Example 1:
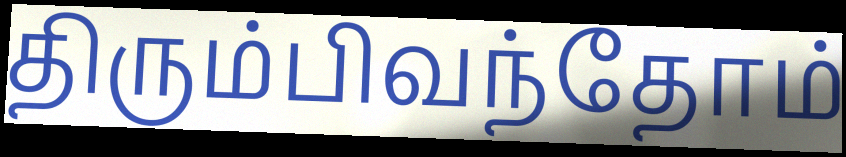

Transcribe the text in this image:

திரும்பிவந்தோம்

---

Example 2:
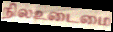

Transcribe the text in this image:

நிலஉடைமை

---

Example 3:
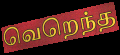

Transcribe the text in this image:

வெறெந்த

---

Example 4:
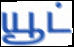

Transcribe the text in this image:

யூட்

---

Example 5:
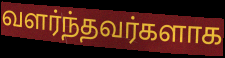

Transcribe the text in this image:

வளர்ந்தவர்களாக